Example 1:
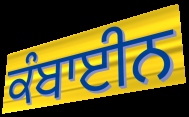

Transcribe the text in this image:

ਕੰਬਾਈਨ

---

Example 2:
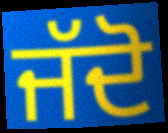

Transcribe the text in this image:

ਜੱਦੋ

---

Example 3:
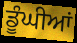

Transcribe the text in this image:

ਡੂੰਘੀਆਂ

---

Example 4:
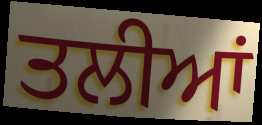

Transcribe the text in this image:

ਤਲੀਆਂ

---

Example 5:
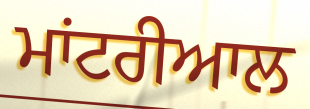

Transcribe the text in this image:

ਮਾਂਟਰੀਆਲ